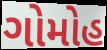
ગોમોહ